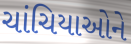
ચાંચિયાઓને